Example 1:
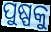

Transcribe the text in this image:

ପୁଷ୍ପକୁ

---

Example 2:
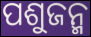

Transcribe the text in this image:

ପଶୁଜନ୍ମ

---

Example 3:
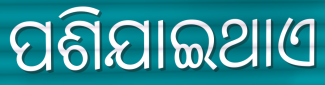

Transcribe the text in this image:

ପଶିଯାଇଥାଏ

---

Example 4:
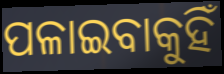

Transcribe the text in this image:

ପଳାଇବାକୁହିଁ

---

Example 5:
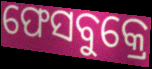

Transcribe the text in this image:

ଫେସବୁକ୍ରେ